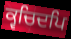
ਕ੍ਵਚਿਦਪਿ